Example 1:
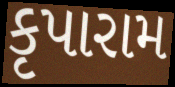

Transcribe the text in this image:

કૃપારામ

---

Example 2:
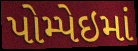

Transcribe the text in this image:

પોમ્પેઇમાં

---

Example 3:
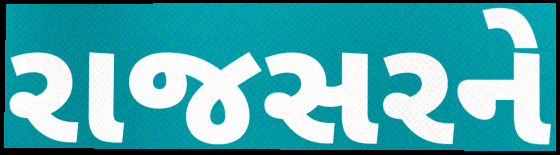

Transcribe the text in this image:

રાજસરને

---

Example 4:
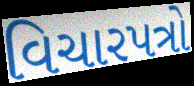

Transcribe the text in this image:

વિચારપત્રો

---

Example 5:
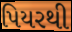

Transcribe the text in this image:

પિયરથી